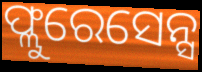
ଫ୍ଲୁରେସେନ୍ସ